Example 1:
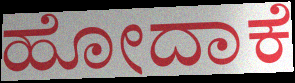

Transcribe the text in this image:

ಹೋದಾಕೆ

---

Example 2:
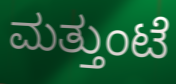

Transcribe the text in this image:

ಮತ್ತುಂಟೆ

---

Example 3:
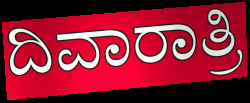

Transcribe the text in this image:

ದಿವಾರಾತ್ರಿ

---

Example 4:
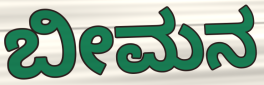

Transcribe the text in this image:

ಬೀಮನ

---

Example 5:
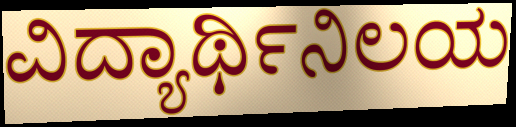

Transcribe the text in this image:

ವಿದ್ಯಾರ್ಥಿನಿಲಯ